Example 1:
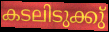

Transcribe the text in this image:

കടലിടുക്കു്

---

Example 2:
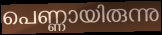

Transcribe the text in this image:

പെണ്ണായിരുന്നു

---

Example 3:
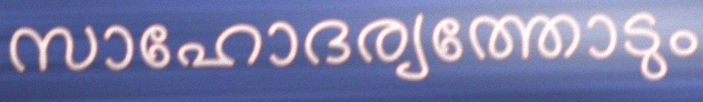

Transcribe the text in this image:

സാഹോദര്യത്തോടും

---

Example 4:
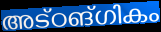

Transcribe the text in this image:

അട്ഠങ്ഗികം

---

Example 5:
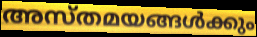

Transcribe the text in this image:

അസ്തമയങ്ങൾക്കും